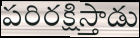
పరిరక్షిస్తాడు